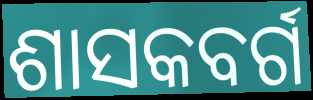
ଶାସକବର୍ଗ